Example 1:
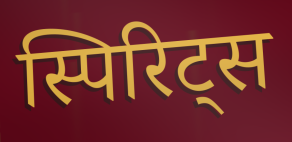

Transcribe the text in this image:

स्पिरिट्स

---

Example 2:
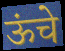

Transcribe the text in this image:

ऊंचे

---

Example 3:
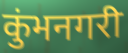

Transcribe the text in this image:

कुंभनगरी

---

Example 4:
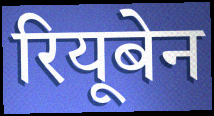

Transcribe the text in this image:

रियूबेन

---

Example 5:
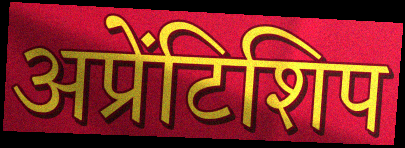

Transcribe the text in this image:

अप्रेंटिशिप